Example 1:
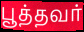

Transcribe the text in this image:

பூத்தவர்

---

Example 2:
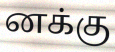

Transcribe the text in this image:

னக்கு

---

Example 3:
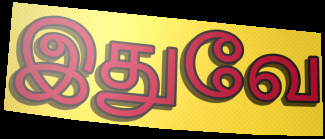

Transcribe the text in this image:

இதுவே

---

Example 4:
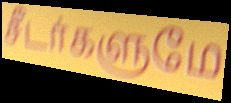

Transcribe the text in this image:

சீடர்களுமே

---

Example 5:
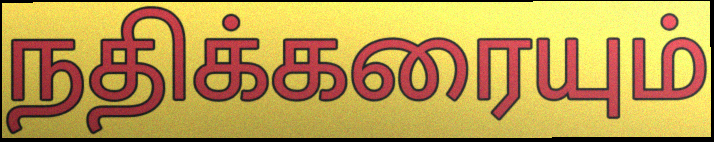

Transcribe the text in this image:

நதிக்கரையும்